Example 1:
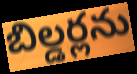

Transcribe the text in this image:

బిల్డర్లను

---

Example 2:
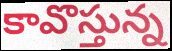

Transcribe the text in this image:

కావొస్తున్న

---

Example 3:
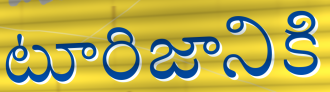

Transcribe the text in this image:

టూరిజానికి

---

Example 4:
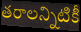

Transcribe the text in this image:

తరాలన్నిటికీ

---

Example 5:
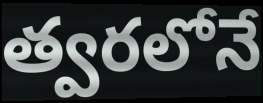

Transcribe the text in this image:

త్వరలోనే